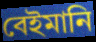
বেইমানি